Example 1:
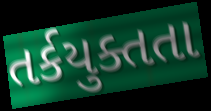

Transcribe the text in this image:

તર્કયુક્તતા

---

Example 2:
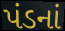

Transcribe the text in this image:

પંડનાં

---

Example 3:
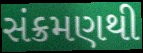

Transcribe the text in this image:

સંક્રમણથી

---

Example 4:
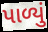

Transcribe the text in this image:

પાળ્યું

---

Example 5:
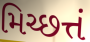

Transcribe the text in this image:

મિચ્છત્તં